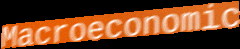
Macroeconomic